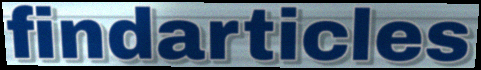
findarticles